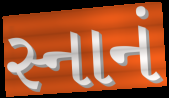
સ્નાનં